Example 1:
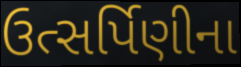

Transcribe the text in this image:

ઉત્સર્પિણીના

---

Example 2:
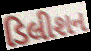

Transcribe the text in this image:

ડિલીશન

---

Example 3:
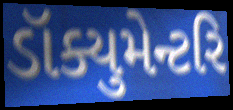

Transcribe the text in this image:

ડૉક્યુમેન્ટરિ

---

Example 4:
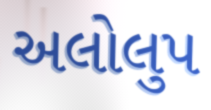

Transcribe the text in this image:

અલોલુપ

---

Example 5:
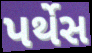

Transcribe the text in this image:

પર્થેસ